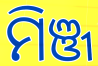
ମିଞ୍ଜ